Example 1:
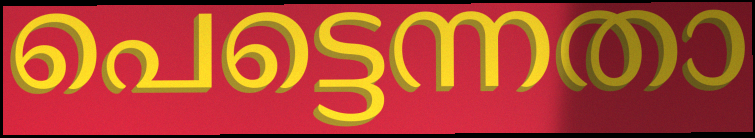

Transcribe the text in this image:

പെട്ടെന്നതാ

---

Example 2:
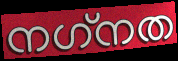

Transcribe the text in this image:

നഗ്‌നത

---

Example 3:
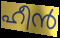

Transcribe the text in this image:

ഹീൻ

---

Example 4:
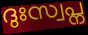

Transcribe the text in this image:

ദുഃസ്വപ്ന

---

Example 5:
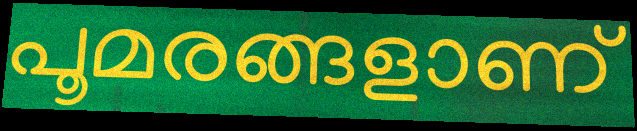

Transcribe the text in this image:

പൂമരങ്ങളാണ്